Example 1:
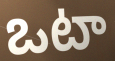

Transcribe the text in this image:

ఒటా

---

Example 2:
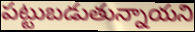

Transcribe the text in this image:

పట్టుబడుతున్నాయని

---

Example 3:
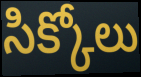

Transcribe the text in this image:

సిక్కోలు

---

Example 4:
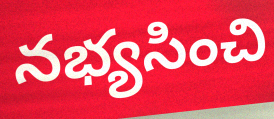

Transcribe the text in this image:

నభ్యసించి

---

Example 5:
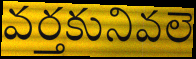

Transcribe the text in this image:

వర్తకునివలె